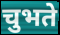
चुभते